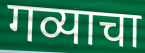
गव्याचा